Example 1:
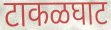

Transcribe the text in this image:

टाकळघाट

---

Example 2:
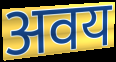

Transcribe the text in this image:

अवय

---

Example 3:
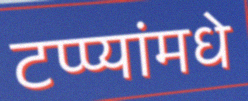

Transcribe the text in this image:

टप्प्यांमधे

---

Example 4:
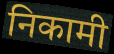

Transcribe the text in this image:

निकामी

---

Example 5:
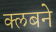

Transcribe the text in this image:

क्लबने